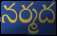
నర్మద